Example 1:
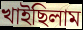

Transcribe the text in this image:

খাইছিলাম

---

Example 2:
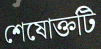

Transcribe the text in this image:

শেষোক্তটি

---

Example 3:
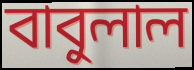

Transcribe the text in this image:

বাবুলাল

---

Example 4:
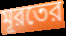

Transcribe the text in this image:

মূরতের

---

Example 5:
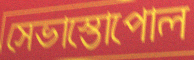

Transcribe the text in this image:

সেভাস্তোপোল